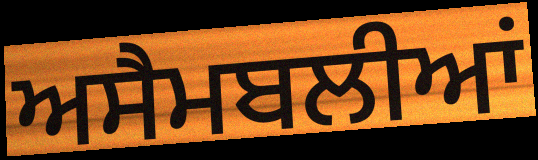
ਅਸੈਮਬਲੀਆਂ